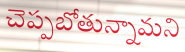
చెప్పబోతున్నామని